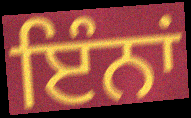
ਇੰਨਾਂ